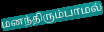
மனந்திரும்பாமல்